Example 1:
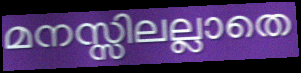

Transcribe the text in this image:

മനസ്സിലല്ലാതെ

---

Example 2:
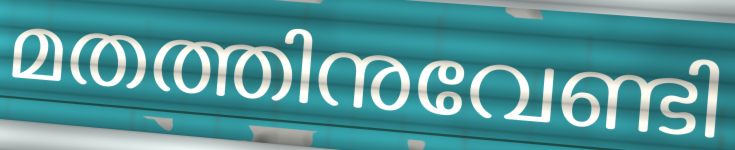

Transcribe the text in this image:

മതത്തിനുവേണ്ടി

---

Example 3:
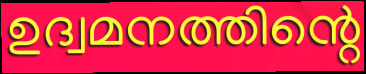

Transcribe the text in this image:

ഉദ്വമനത്തിന്റെ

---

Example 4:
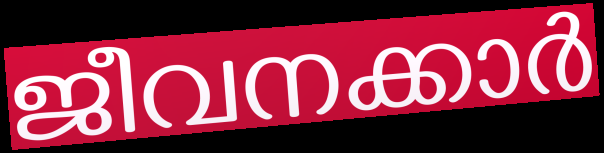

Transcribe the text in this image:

ജീവനക്കാർ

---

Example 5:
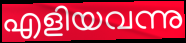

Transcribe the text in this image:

എളിയവന്നു